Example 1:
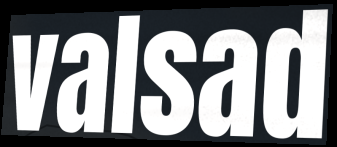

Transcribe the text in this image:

valsad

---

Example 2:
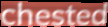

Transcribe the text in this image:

chested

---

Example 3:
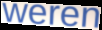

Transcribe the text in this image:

weren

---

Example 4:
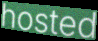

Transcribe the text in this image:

hosted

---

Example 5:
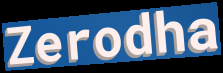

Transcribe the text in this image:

Zerodha